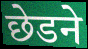
छेडने